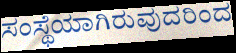
ಸಂಸ್ಥೆಯಾಗಿರುವುದರಿಂದ